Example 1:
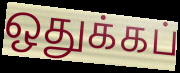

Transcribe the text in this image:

ஒதுக்கப்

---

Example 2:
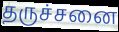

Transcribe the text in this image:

தருச்சனை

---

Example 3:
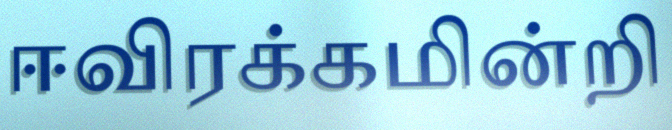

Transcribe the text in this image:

ஈவிரக்கமின்றி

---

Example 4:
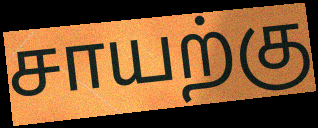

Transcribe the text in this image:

சாயற்கு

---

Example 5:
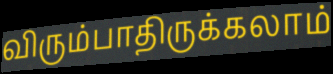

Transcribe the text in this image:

விரும்பாதிருக்கலாம்